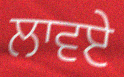
ਲਾਵਏ